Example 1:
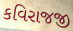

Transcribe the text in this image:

કવિરાજજી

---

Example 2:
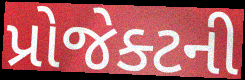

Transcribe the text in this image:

પ્રોજેક્ટની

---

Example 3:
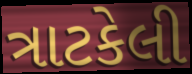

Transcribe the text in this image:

ત્રાટકેલી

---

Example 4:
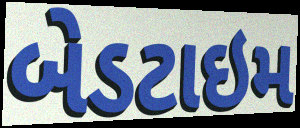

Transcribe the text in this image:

બેડટાઇમ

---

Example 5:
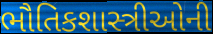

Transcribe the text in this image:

ભૌતિકશાસ્ત્રીઓની